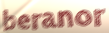
beranor